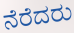
ನೆರೆದರು